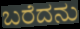
ಬರೆದನು